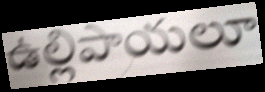
ఉల్లిపాయలూ